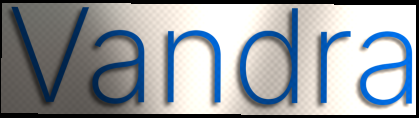
Vandra